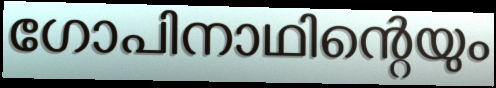
ഗോപിനാഥിന്റെയും